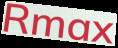
Rmax